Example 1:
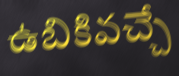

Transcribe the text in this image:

ఉబికివచ్చే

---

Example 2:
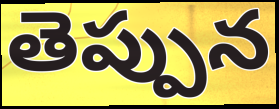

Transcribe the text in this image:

తెప్పున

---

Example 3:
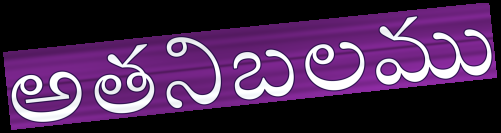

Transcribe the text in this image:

అతనిబలము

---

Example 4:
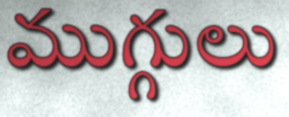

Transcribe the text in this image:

ముగ్గులు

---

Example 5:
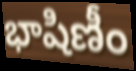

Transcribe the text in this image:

భాషిణీం